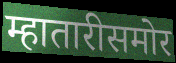
म्हातारीसमोर